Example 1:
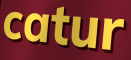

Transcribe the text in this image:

catur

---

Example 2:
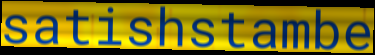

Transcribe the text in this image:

satishstambe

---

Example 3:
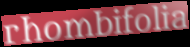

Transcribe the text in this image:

rhombifolia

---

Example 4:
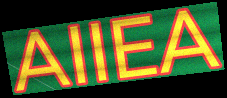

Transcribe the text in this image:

AIIEA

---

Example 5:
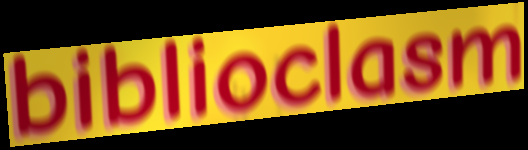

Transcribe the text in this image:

biblioclasm